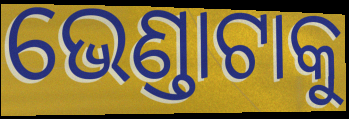
ଭେଣ୍ଡାଟାକୁ